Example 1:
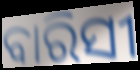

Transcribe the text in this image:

ବାରିସୀ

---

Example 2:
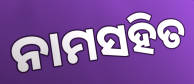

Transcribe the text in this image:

ନାମସହିତ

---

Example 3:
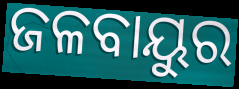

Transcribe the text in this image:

ଜଳବାୟୁର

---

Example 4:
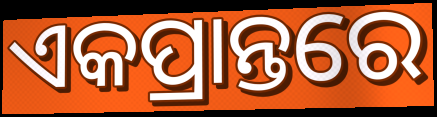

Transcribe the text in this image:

ଏକପ୍ରାନ୍ତରେ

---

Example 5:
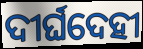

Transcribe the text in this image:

ଦୀର୍ଘଦେହୀ